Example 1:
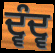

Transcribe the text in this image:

ਦ੍ਵੰਦ੍ਵ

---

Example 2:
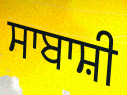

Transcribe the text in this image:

ਸਾਬਾਸ਼ੀ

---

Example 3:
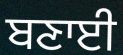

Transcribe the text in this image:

ਬਣਾਈ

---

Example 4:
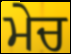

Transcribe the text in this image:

ਮੇਚ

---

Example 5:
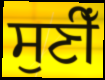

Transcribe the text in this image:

ਸੁਣੀਁ